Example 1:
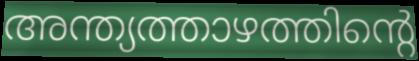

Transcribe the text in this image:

അന്ത്യത്താഴത്തിന്റെ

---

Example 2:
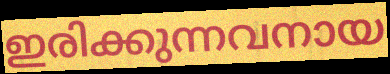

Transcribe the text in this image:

ഇരിക്കുന്നവനായ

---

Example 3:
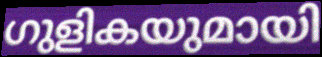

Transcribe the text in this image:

ഗുളികയുമായി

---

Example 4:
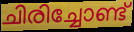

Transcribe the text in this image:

ചിരിച്ചോണ്ട്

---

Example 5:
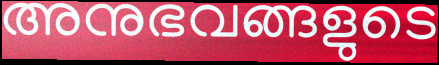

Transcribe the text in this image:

അനുഭവങ്ങളുടെ